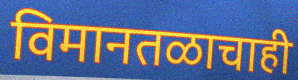
विमानतळाचाही